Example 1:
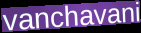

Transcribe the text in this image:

vanchavani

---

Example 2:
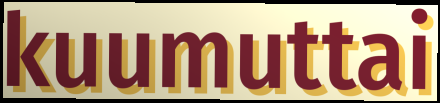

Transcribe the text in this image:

kuumuttai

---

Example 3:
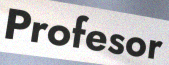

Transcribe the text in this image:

Profesor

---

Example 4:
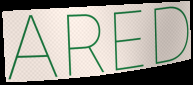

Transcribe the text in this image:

ARED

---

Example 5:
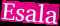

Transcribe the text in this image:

Esala